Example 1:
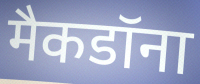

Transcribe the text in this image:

मैकडॉना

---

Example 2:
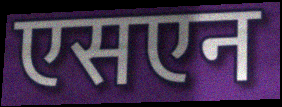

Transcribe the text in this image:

एसएन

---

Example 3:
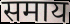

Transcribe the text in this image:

समाय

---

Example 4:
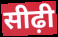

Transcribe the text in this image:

सीढ़ी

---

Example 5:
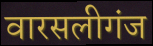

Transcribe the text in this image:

वारसलीगंज